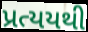
પ્રત્યયથી